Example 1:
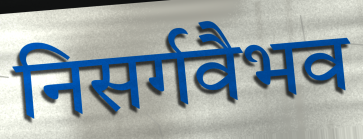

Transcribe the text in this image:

निसर्गवैभव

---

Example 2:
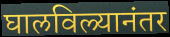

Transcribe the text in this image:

घालविल्यानंतर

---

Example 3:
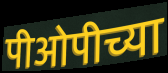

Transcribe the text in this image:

पीओपीच्या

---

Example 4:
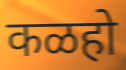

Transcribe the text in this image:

कळहो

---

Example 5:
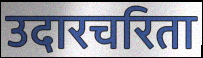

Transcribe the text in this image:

उदारचरिता